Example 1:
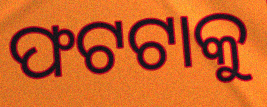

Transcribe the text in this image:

ଫଟଟାକୁ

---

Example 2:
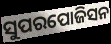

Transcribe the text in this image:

ସୁପରପୋଜିସନ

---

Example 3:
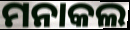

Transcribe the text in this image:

ମନାକଲ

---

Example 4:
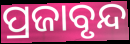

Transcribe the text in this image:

ପ୍ରଜାବୃନ୍ଦ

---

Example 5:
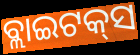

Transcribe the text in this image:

ବ୍ଲାଇଟକ୍‌ସ